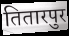
तितारपुर